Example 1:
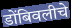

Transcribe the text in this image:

डोंबिवलीचे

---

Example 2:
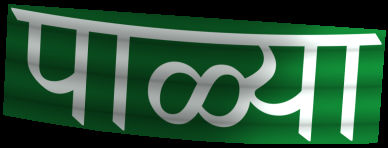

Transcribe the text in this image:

पाळ्या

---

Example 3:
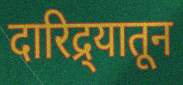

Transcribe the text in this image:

दारिद्र्यातून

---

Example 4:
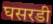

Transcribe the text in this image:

घसरडी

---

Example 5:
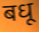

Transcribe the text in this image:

बधू